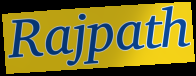
Rajpath